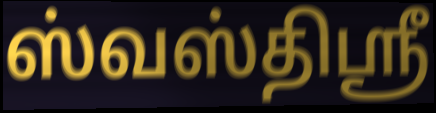
ஸ்வஸ்திஸ்ரீ